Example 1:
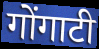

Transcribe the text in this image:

गोंगाटी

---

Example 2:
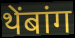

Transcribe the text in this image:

थेंबांग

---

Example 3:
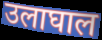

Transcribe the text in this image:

उलाघाल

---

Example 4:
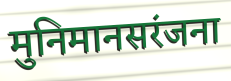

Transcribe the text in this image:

मुनिमानसरंजना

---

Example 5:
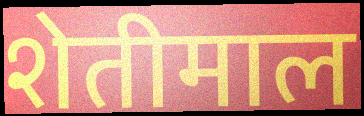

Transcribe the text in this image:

शेतीमाल